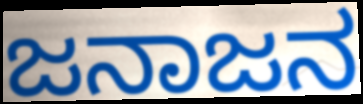
ಜನಾಜನ